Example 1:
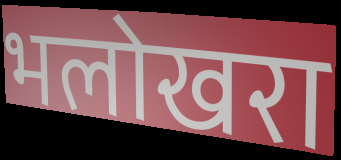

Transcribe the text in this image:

भलोखरा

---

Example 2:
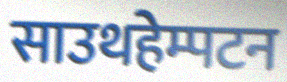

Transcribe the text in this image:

साउथहेम्पटन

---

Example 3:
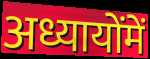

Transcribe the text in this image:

अध्यायोंमें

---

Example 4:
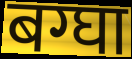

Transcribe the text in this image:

बग्घा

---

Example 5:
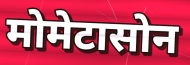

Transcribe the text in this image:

मोमेटासोन